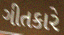
ગીતકારે